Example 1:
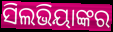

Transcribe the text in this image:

ସିଲଭିୟାଙ୍କର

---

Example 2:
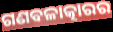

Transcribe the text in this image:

ଗଣବଳାତ୍କାରର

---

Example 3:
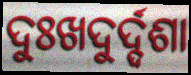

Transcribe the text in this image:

ଦୁଃଖଦୁର୍ଦ୍ଦଶା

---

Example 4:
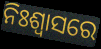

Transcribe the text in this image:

ନିଃଶ୍ଵାସରେ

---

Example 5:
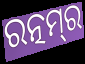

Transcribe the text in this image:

ରତ୍ନମ୍‌ର